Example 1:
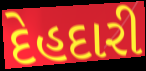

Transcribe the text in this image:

દેહદારી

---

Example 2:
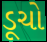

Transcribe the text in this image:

ડૂચો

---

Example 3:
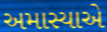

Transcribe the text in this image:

અમાસ્યાએ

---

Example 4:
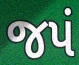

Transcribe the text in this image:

જપં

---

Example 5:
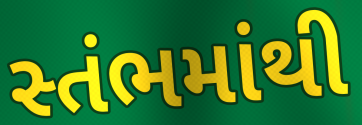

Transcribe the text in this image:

સ્તંભમાંથી